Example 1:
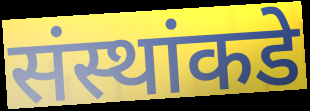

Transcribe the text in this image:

संस्थांकडे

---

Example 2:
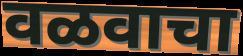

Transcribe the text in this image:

वळवाचा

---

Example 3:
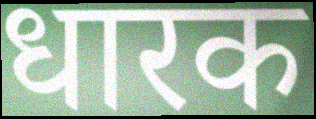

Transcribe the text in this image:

धारक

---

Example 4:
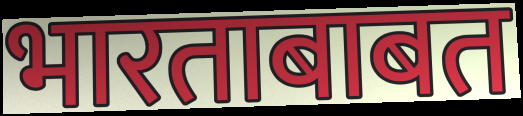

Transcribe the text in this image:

भारताबाबत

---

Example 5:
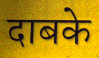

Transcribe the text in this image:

दाबके